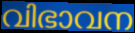
വിഭാവന